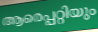
ആരെപ്പറ്റിയും